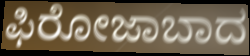
ಫಿರೋಜಾಬಾದ